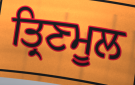
ਤ੍ਰਿਣਮੂਲ